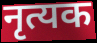
नृत्यक